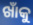
ଖାଁକୁ